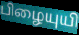
பிழையுயி